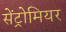
सेंट्रोमियर